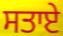
ਸਤਾਏ